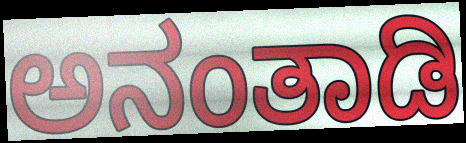
ಅನಂತಾಡಿ